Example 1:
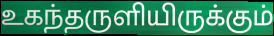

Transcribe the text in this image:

உகந்தருளியிருக்கும்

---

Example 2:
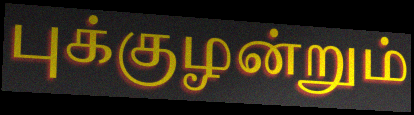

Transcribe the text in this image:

புக்குழன்றும்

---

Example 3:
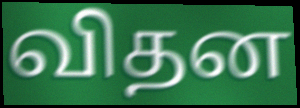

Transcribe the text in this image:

விதன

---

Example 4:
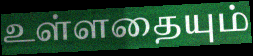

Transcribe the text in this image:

உள்ளதையும்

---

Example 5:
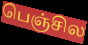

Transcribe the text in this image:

பெஞ்சில